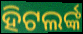
ହିଟଲର୍ଙ୍କ